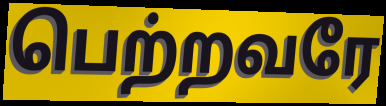
பெற்றவரே